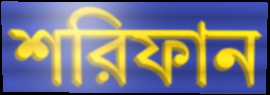
শরিফান